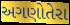
અગણોતેરા